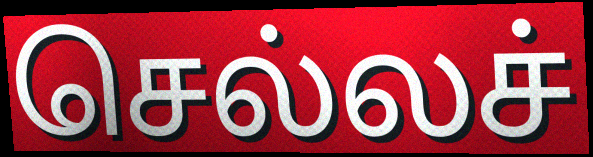
செல்லச்